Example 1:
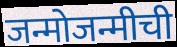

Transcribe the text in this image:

जन्मोजन्मीची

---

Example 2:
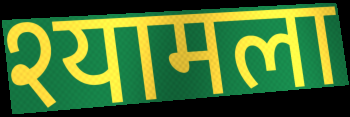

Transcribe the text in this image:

श्यामला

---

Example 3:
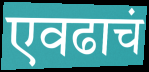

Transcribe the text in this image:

एवढाचं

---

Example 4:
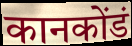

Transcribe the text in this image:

कानकोंडं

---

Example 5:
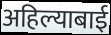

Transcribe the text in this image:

अहिल्याबाई